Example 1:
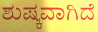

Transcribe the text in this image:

ಶುಷ್ಕವಾಗಿದೆ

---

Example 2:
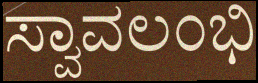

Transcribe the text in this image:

ಸ್ವಾವಲಂಭಿ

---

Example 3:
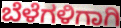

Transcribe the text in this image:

ಬೆಳೆಗಳಿಗಾಗಿ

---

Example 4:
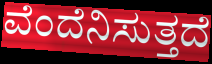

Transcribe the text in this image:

ವೆಂದೆನಿಸುತ್ತದೆ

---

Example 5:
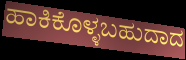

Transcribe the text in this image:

ಹಾಕಿಕೊಳ್ಳಬಹುದಾದ